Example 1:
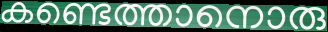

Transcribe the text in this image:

കണ്ടെത്താനൊരു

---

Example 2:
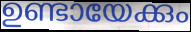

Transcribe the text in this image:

ഉണ്ടായേക്കും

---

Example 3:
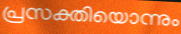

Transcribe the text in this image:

പ്രസക്തിയൊന്നും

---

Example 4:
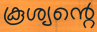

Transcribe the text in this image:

കൂശ്യന്റെ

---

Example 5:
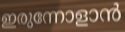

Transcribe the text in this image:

ഇരുന്നോളാൻ